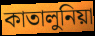
কাতালুনিয়া